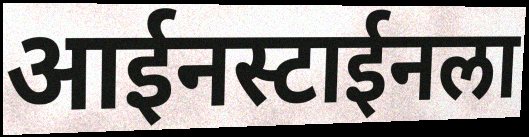
आईनस्टाईनला